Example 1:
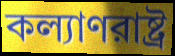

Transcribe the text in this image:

কল্যাণরাষ্ট্র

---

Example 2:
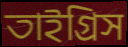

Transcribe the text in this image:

তাইগ্রিস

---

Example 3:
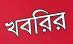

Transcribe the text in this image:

খবরির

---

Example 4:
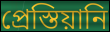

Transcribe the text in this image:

প্রেস্তিয়ানি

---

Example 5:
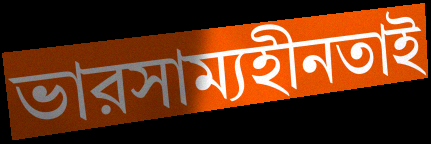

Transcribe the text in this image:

ভারসাম্যহীনতাই